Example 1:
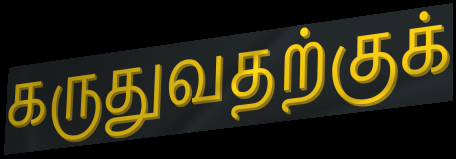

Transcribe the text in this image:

கருதுவதற்குக்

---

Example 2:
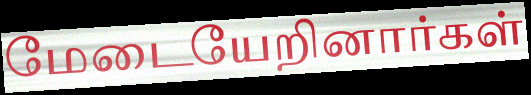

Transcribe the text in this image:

மேடையேறினார்கள்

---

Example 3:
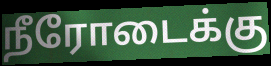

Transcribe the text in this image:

நீரோடைக்கு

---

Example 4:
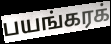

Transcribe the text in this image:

பயங்கரக்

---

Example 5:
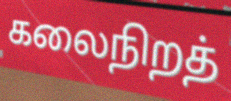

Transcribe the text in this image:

கலைநிறத்